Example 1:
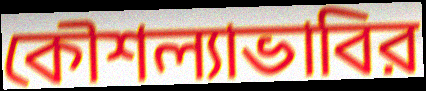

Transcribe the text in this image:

কৌশল্যাভাবির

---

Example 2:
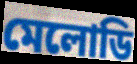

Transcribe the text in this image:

মেলোডি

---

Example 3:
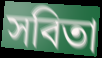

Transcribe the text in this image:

সবিতা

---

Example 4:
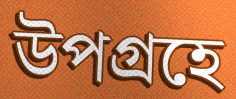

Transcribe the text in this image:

উপগ্রহে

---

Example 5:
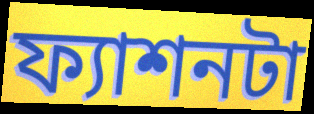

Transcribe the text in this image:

ফ্যাশনটা